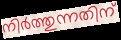
നിർത്തുന്നതിന്